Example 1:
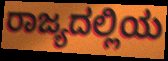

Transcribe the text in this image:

ರಾಜ್ಯದಲ್ಲಿಯ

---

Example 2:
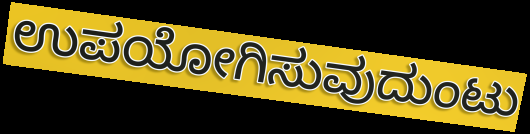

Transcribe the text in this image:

ಉಪಯೋಗಿಸುವುದುಂಟು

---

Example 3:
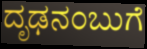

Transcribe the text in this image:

ದೃಢನಂಬುಗೆ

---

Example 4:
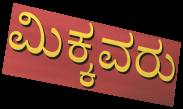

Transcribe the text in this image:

ಮಿಕ್ಕವರು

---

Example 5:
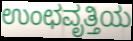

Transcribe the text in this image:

ಉಂಛವೃತ್ತಿಯ